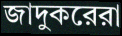
জাদুকরেরা